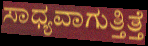
ಸಾಧ್ಯವಾಗುತ್ತಿತ್ತೆ